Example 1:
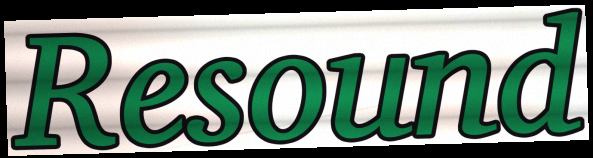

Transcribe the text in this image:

Resound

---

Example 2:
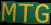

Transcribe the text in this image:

MTG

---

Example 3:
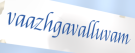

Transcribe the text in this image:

vaazhgavalluvam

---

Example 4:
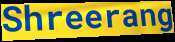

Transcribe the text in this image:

Shreerang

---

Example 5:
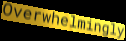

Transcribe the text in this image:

Overwhelmingly